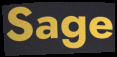
Sage